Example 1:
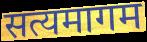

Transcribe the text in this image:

सत्यमागम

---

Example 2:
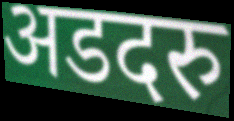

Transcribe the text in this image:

अडदरु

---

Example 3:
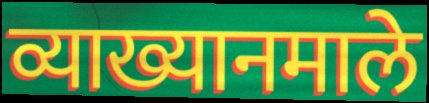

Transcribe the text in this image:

व्याख्यानमाले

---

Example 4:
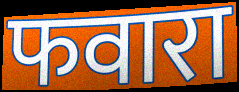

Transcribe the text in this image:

फवारा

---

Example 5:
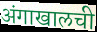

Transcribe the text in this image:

अंगाखालची